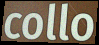
collo